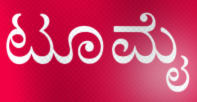
ಟೂಮೈ